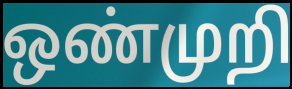
ஒண்முறி